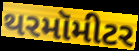
થરમૉમીટર